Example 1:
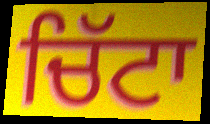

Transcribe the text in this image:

ਚਿੱਟਾ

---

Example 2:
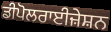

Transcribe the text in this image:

ਡੀਪੋਲਰਾਈਜ਼ੇਸ਼ਨ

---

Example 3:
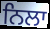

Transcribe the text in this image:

ਨਿਲਾ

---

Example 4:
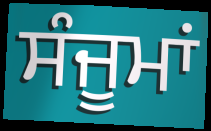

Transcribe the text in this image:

ਸੰਜੂਮਾਂ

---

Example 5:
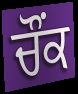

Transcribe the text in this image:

ਚੌਂਕ